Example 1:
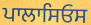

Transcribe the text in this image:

ਪਾਲਾਸਿਓਸ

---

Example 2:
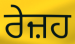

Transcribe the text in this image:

ਰੇਜ਼ਹ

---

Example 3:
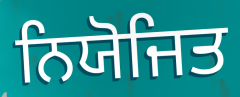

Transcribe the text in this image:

ਨਿਯੋਜਿਤ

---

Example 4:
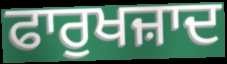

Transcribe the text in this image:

ਫਾਰੁਖਜ਼ਾਦ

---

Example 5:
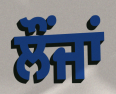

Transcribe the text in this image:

ਲੌਂਜਾਂ